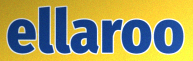
ellaroo